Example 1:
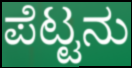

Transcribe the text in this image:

ಪೆಟ್ಟನು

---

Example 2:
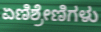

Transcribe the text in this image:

ಏಣಿಶ್ರೇಣಿಗಳು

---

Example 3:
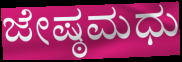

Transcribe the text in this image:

ಜೇಷ್ಠಮಧು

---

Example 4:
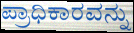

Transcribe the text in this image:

ಪ್ರಾಧಿಕಾರವನ್ನು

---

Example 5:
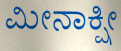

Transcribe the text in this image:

ಮೀನಾಕ್ಷೀ